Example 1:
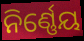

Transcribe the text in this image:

ନିର୍ଣ୍ଣେୟ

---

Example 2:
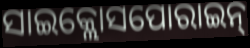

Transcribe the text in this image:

ସାଇକ୍ଲୋସପୋରାଇନ୍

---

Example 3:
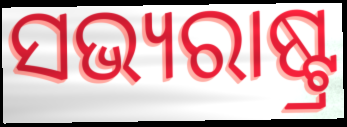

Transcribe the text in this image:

ସଭ୍ୟରାଷ୍ଟ୍ର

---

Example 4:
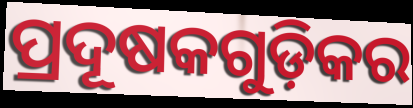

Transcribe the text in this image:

ପ୍ରଦୂଷକଗୁଡ଼ିକର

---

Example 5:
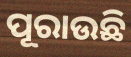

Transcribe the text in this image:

ପୂରାଉଛି